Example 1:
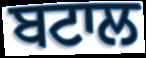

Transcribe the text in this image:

ਬਟਾਲ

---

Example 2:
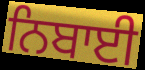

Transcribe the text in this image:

ਨਿਬਾਈ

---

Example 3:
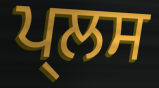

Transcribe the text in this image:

ਪ੍ਲਸ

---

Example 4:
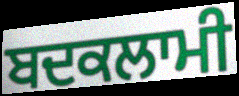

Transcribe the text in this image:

ਬਦਕਲਾਮੀ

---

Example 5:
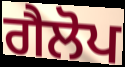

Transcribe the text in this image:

ਗੈਲੋਪ